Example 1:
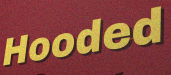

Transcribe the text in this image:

Hooded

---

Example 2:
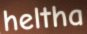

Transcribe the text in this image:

heltha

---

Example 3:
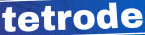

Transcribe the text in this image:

tetrode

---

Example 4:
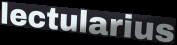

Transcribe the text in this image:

lectularius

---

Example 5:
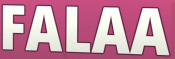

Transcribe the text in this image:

FALAA